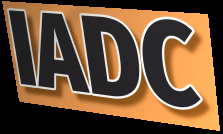
IADC